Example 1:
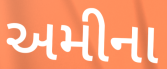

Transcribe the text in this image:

અમીના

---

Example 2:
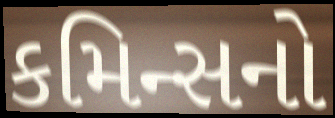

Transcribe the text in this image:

કમિન્સનો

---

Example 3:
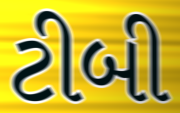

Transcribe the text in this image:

ટીબી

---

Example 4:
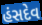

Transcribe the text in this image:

હંસદેવ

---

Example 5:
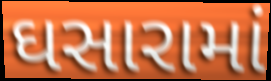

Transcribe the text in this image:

ઘસારામાં